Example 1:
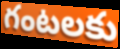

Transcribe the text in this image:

గంటలకు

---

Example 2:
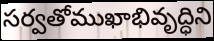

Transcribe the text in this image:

సర్వతోముఖాభివృద్ధిని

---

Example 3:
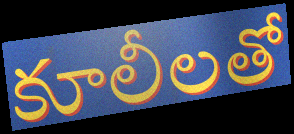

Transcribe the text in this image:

కూలీలతో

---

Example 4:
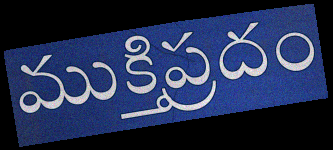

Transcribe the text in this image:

ముక్తిప్రదం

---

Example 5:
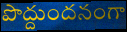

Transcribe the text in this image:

పొద్దుందనంగా